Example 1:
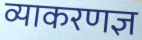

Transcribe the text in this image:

व्याकरणज्ञ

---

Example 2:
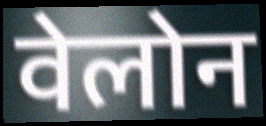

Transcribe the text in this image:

वेलोन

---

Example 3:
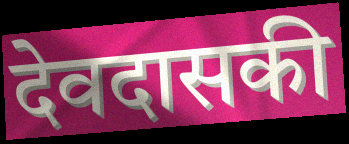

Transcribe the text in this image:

देवदासकी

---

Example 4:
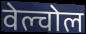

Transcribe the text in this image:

वेल्चोल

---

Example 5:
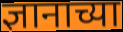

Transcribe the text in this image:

ज्ञानाच्या